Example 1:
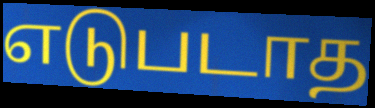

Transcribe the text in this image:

எடுபடாத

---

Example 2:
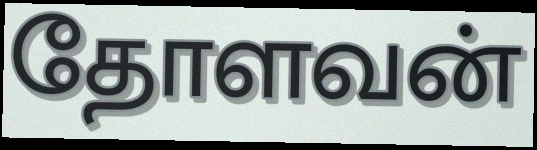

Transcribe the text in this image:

தோளவன்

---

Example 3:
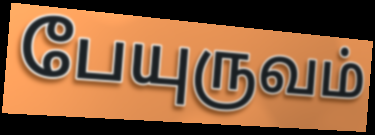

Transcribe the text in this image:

பேயுருவம்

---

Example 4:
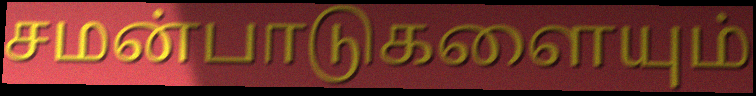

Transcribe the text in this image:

சமன்பாடுகளையும்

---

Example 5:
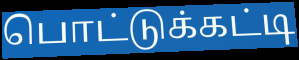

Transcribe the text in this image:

பொட்டுக்கட்டி